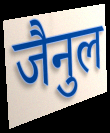
जैनुल